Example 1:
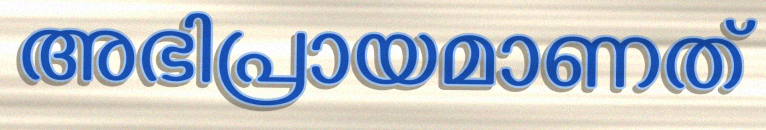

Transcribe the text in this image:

അഭിപ്രായമാണത്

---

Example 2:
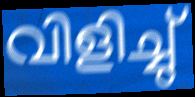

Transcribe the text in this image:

വിളിച്ചു്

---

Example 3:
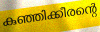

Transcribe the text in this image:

കുഞ്ഞിക്കീരന്റെ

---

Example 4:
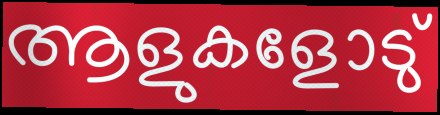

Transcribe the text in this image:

ആളുകളോടു്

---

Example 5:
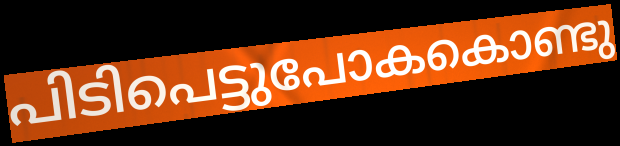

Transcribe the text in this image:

പിടിപെട്ടുപോകകൊണ്ടു